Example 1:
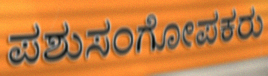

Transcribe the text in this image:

ಪಶುಸಂಗೋಪಕರು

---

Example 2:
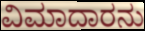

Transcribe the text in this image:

ವಿಮಾದಾರನು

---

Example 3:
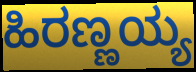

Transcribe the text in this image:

ಹಿರಣ್ಣಯ್ಯ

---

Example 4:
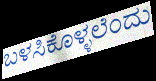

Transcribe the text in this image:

ಬಳಸಿಕೊಳ್ಳಲೆಂದು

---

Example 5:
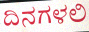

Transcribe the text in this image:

ದಿನಗಳಲಿ